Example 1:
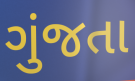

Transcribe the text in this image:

ગુંજતા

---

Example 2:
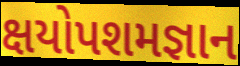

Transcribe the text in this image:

ક્ષયોપશમજ્ઞાન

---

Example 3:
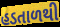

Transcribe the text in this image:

હડતાળથી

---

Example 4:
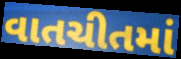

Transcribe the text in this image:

વાતચીતમાં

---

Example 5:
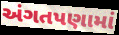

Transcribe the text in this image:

અંગતપણામાં